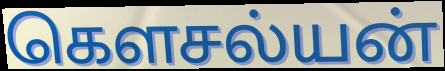
கௌசல்யன்